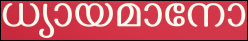
ധ്യായമാനോ